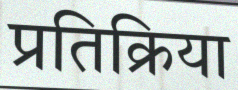
प्रतिक्रिया